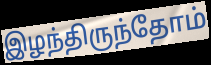
இழந்திருந்தோம்